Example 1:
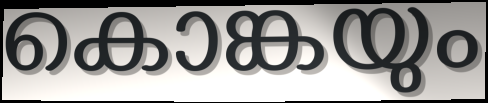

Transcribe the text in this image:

കൊങ്കയും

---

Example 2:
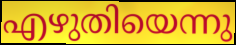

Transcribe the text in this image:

എഴുതിയെന്നു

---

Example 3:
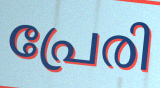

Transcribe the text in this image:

പ്രേരി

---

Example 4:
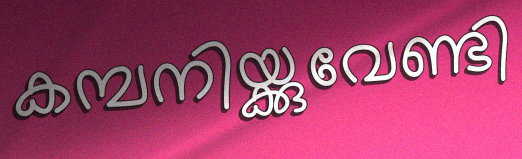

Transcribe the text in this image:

കമ്പനിയ്ക്കുവേണ്ടി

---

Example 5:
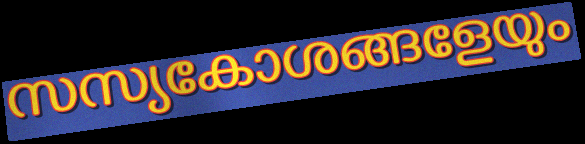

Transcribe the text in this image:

സസ്യകോശങ്ങളേയും